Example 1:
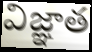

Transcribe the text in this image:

విజ్ఞాత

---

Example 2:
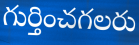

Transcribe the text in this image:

గుర్తించగలరు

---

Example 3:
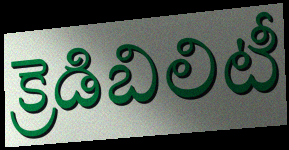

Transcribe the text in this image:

క్రెడిబిలిటీ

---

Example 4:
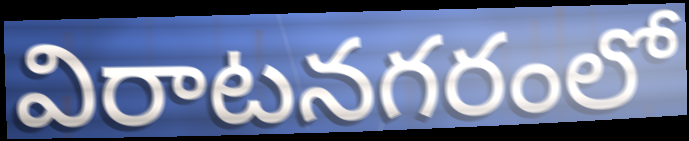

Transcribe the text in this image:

విరాటనగరంలో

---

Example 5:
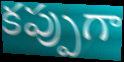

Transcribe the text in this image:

కప్పుగా